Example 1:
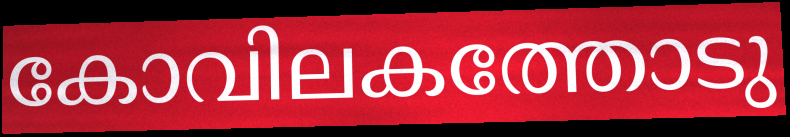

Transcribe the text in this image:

കോവിലകത്തോടു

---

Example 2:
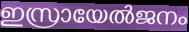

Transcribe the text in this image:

ഇസ്രായേൽജനം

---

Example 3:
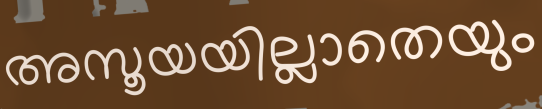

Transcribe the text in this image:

അസൂയയില്ലാതെയും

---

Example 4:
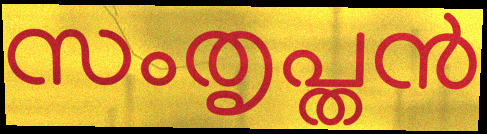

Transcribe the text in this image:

സംതൃപ്തൻ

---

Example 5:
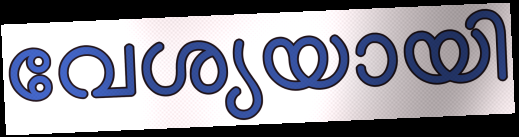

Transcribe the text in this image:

വേശ്യയായി